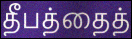
தீபத்தைத்